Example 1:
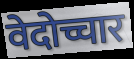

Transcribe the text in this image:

वेदोच्चार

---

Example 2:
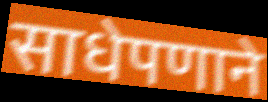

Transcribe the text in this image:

साधेपणाने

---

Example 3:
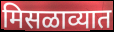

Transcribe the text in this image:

मिसळाव्यात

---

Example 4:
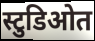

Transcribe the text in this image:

स्टुडिओत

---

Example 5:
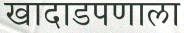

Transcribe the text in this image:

खादाडपणाला